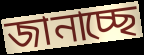
জানাচ্ছে